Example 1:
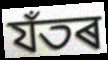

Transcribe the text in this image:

যঁতৰ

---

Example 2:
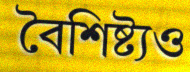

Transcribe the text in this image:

বৈশিষ্ট্যও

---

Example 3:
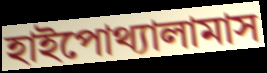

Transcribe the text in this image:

হাইপোথ্যালামাস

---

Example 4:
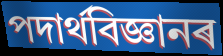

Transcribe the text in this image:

পদাৰ্থবিজ্ঞানৰ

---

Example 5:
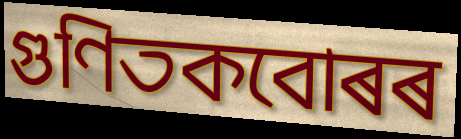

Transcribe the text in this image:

গুণিতকবোৰৰ